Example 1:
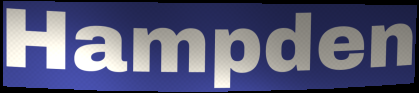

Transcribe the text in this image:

Hampden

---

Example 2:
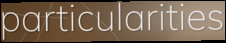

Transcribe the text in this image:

particularities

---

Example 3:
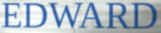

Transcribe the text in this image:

EDWARD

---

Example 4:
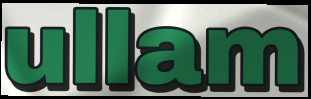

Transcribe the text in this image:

ullam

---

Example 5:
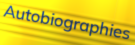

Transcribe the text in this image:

Autobiographies